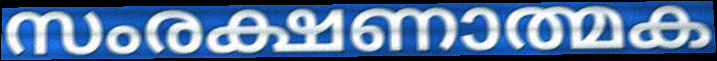
സംരക്ഷണാത്മക